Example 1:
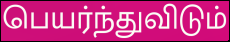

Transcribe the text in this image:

பெயர்ந்துவிடும்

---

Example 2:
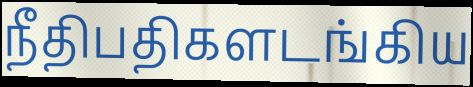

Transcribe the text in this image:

நீதிபதிகளடங்கிய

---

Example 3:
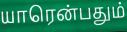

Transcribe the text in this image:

யாரென்பதும்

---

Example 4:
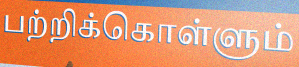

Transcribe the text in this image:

பற்றிக்கொள்ளும்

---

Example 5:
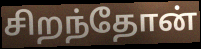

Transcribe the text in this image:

சிறந்தோன்